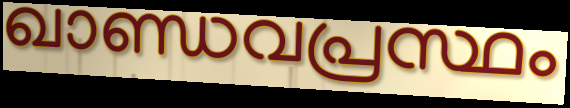
ഖാണ്ഡവപ്രസ്ഥം